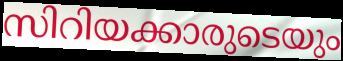
സിറിയക്കാരുടെയും